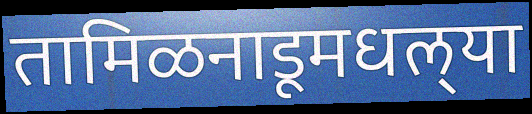
तामिळनाडूमधल्या